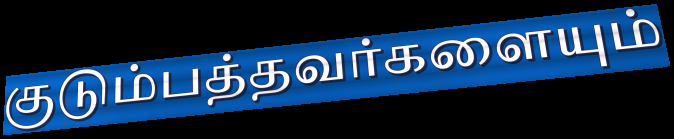
குடும்பத்தவர்களையும்